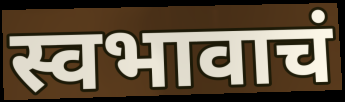
स्वभावाचं